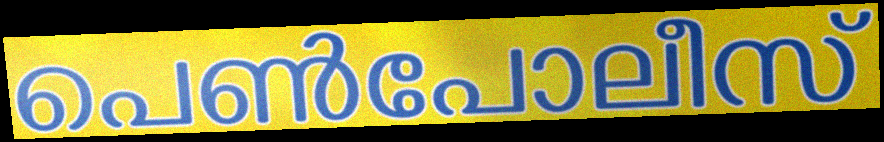
പെൺപോലീസ്